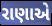
રાણાએ